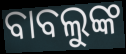
ବାବଲୁଙ୍କ